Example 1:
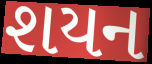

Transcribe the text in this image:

શયન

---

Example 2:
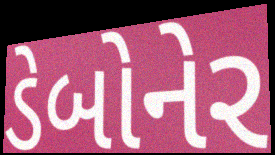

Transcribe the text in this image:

ડેબોનેર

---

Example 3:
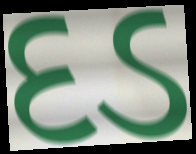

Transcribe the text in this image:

દડ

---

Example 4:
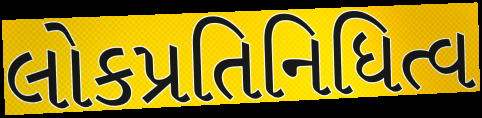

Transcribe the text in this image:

લોકપ્રતિનિધિત્વ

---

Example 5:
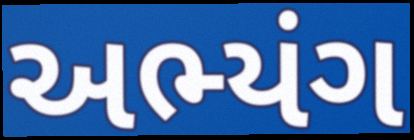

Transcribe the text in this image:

અભ્યંગ